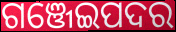
ଗଞ୍ଜେଇପଦର